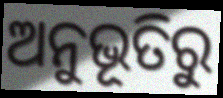
ଅନୁଭୂତିରୁ